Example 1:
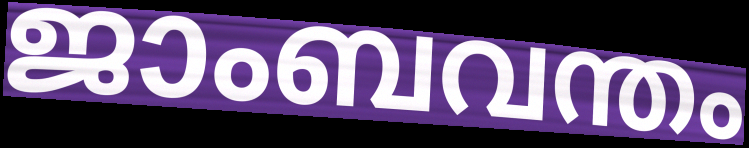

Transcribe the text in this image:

ജാംബവന്തം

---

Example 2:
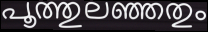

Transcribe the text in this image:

പൂത്തുലഞ്ഞതും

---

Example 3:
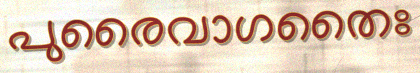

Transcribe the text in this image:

പുരൈവാഗതൈഃ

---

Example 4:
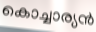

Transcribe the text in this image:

കൊച്ചാര്യൻ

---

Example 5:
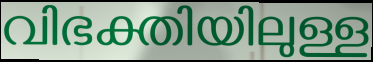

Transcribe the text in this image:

വിഭക്തിയിലുള്ള